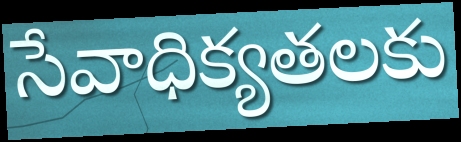
సేవాధిక్యతలకు